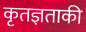
कृतज्ञताकी